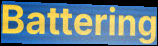
Battering